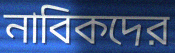
নাবিকদের